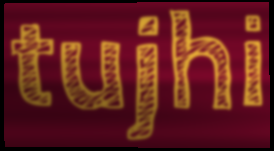
tujhi